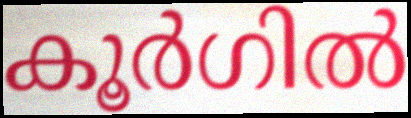
കൂർഗിൽ